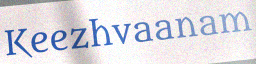
Keezhvaanam